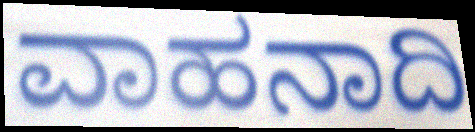
ವಾಹನಾದಿ